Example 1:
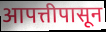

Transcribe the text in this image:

आपत्तीपासून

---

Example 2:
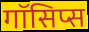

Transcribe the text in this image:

गॉसिप्स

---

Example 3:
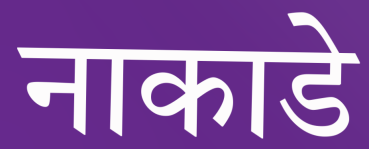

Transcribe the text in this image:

नाकाडे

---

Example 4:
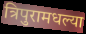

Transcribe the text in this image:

त्रिपुरामधल्या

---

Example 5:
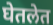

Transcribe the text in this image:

घेतलेत